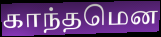
காந்தமென